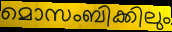
മൊസംബിക്കിലും